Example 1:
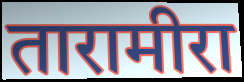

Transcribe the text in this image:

तारामीरा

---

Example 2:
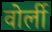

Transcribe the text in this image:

वोर्ली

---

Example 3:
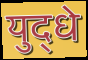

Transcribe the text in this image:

युद्धे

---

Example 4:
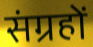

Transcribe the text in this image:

संग्रहों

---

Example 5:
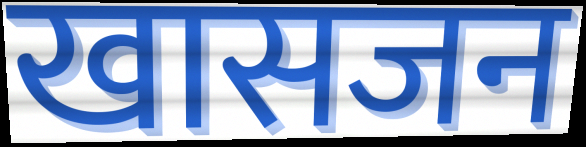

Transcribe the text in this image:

खासजन